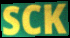
SCK